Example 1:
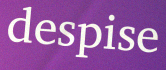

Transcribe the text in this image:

despise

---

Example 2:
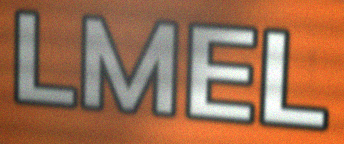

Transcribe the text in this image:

LMEL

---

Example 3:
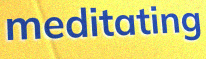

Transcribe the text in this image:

meditating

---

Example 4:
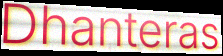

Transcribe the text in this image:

Dhanteras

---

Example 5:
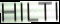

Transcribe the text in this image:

HILTI